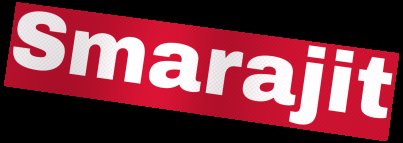
Smarajit